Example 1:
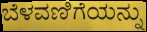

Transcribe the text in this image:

ಬೆಳವಣಿಗೆಯನ್ನು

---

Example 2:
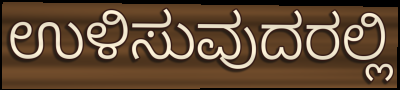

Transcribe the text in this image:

ಉಳಿಸುವುದರಲ್ಲಿ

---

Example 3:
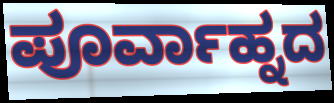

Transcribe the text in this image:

ಪೂರ್ವಾಹ್ನದ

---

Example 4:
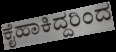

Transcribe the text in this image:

ಕೈಹಾಕಿದ್ದರಿಂದ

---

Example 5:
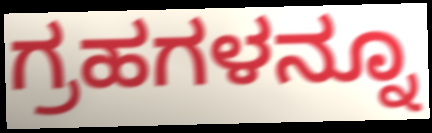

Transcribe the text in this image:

ಗ್ರಹಗಳನ್ನೂ